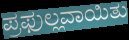
ಪ್ರಫುಲ್ಲವಾಯಿತು